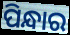
ପିନ୍ଧାର